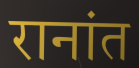
रानांत